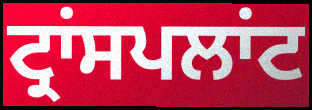
ਟ੍ਰਾਂਸਪਲਾਂਟ